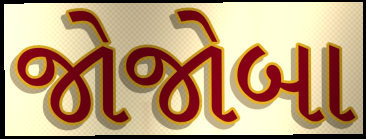
જોજોબા